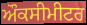
ਔਕਸੀਮੀਟਰ